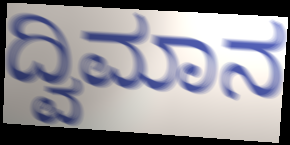
ದ್ವಿಮಾನ